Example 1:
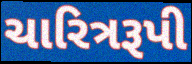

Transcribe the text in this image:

ચારિત્રરૂપી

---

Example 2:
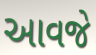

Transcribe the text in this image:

આવજે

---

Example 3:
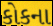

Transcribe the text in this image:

કોકના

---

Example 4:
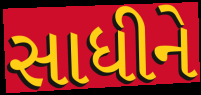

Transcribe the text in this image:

સાધીને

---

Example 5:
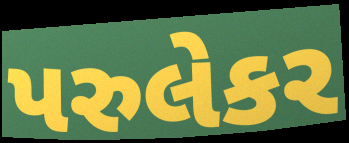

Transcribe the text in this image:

પરુલેકર